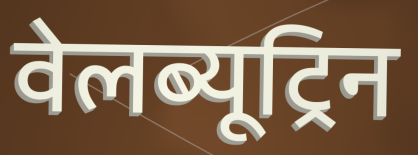
वेलब्यूट्रिन